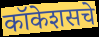
कॉकेशसचे